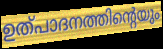
ഉത്പാദനത്തിന്റെയും